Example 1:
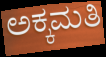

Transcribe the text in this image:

ಅಕ್ಕಮತಿ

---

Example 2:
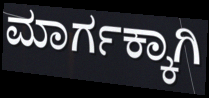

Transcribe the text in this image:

ಮಾರ್ಗಕ್ಕಾಗಿ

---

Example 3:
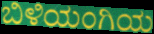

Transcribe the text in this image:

ಬಿಳಿಯಂಗಿಯ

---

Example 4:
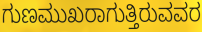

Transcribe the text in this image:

ಗುಣಮುಖರಾಗುತ್ತಿರುವವರ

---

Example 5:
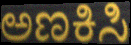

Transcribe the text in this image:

ಅಣಕಿಸಿ